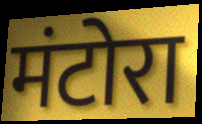
मंटोरा